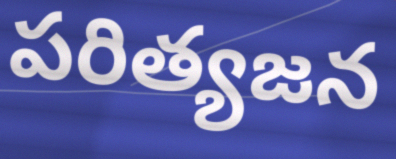
పరిత్యజన